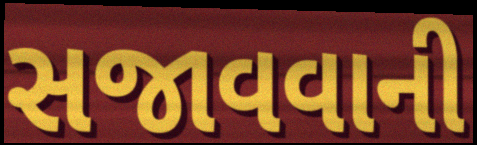
સજાવવાની